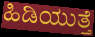
ಹಿಡಿಯುತ್ತೆ